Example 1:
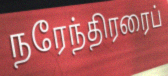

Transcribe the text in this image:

நரேந்திரரைப்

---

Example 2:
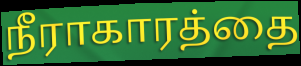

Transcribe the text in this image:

நீராகாரத்தை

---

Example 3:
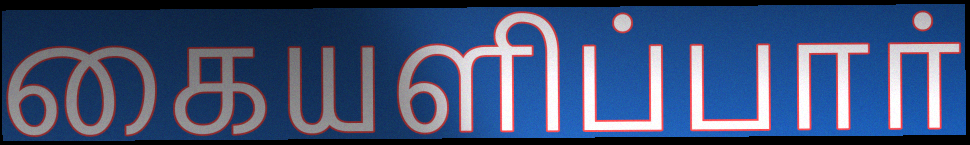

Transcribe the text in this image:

கையளிப்பார்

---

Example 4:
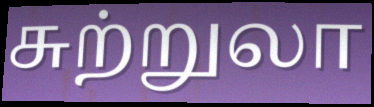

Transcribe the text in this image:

சுற்றுலா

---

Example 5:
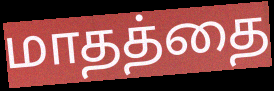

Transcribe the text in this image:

மாதத்தை